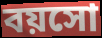
বয়সো